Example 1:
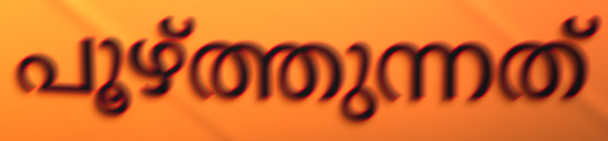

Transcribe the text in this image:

പൂഴ്ത്തുന്നത്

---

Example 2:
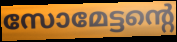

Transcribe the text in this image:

സോമേട്ടന്റെ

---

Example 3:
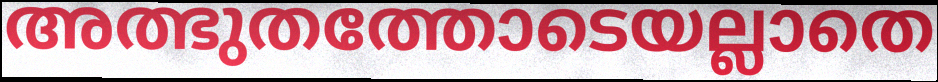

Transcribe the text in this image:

അത്ഭുതത്തോടെയല്ലാതെ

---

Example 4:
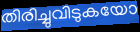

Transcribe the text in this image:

തിരിച്ചുവിടുകയോ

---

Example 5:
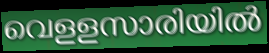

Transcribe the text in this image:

വെളളസാരിയിൽ